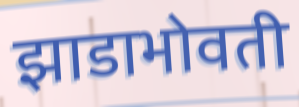
झाडाभोवती